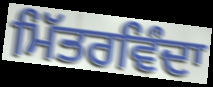
ਮਿੱਤਰਵਿੰਦਾ